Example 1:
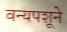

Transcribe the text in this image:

वन्यपशूने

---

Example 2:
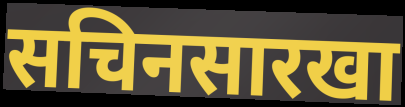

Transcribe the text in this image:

सचिनसारखा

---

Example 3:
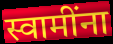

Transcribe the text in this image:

स्वामींना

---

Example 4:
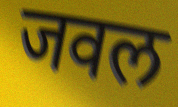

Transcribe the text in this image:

जवल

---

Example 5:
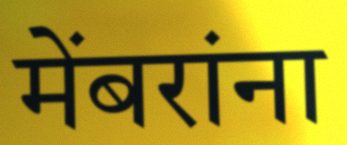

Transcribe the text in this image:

मेंबरांना